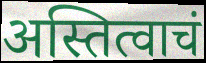
अस्तित्वाचं